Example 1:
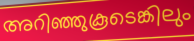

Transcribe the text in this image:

അറിഞ്ഞുകൂടെങ്കിലും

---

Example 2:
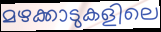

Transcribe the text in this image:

മഴക്കാടുകളിലെ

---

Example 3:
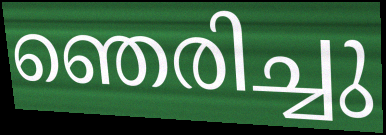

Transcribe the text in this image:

ഞെരിച്ചു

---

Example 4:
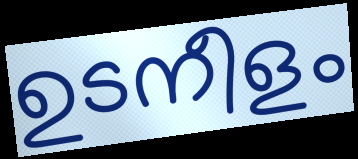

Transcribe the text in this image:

ഉടനീളം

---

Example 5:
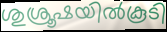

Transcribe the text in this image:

ശുശ്രൂഷയിൽകൂടി